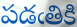
పడఁతికి